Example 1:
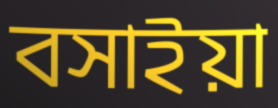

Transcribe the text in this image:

বসাইয়া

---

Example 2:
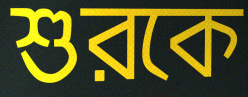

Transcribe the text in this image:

শুরকে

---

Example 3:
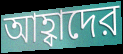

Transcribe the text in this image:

আহ্বাদের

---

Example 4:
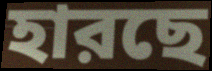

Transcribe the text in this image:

হারছে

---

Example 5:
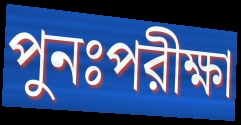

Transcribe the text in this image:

পুনঃপরীক্ষা